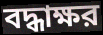
বদ্ধাক্ষর